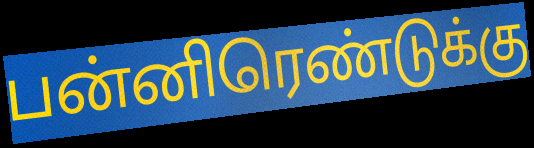
பன்னிரெண்டுக்கு